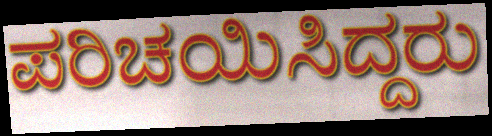
ಪರಿಚಯಿಸಿದ್ದರು